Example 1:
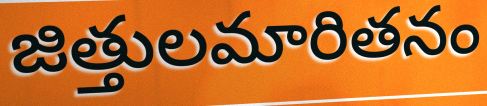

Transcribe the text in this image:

జిత్తులమారితనం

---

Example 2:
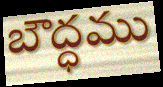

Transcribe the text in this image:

బౌద్ధము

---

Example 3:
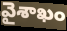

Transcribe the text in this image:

వైశాఖం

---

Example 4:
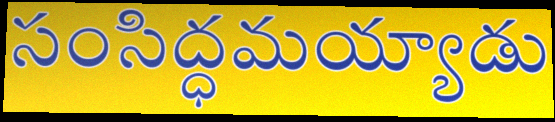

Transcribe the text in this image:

సంసిద్ధమయ్యాడు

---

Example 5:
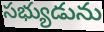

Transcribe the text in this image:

సభ్యుడును